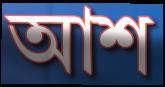
আশ